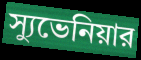
স্যুভেনিয়ার